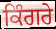
ਕਿੰਗਰੇ